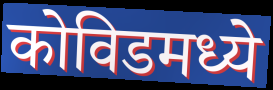
कोविडमध्ये